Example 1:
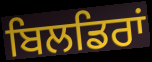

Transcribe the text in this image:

ਬਿਲਡਿਰਾਂ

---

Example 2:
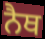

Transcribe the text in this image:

ਨੈਥ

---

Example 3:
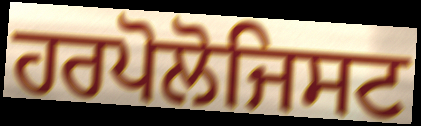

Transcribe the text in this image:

ਹਰਪੋਲੋਜਿਸਟ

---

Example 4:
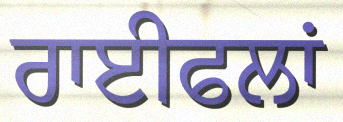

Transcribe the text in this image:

ਰਾਈਫਲਾਂ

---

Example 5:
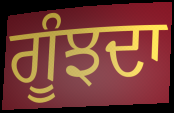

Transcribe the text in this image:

ਗੂੰਝਦਾ